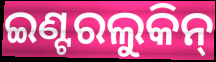
ଇଣ୍ଟରଲୁକିନ୍